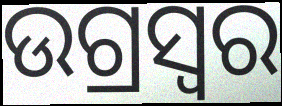
ଉଗ୍ରସ୍ୱର